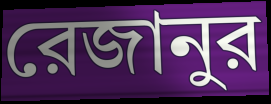
রেজানুর